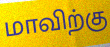
மாவிற்கு